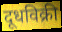
दूधविक्री